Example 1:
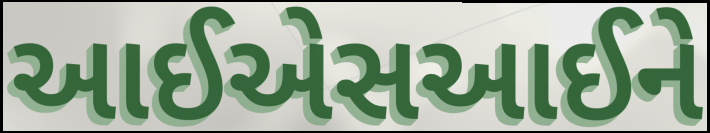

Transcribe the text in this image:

આઈએસઆઈને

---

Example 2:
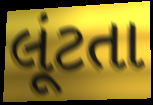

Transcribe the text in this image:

લૂંટતા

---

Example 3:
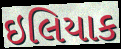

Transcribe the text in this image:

ઇલિયાક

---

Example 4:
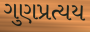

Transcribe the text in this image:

ગુણપ્રત્યય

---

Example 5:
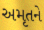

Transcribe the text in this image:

અમૃતને